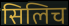
सिलिच